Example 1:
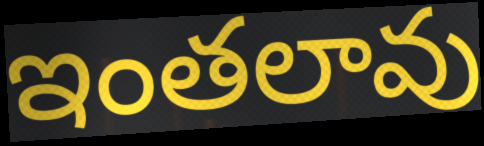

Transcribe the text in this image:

ఇంతలావు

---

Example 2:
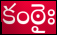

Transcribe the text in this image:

కంఠైః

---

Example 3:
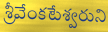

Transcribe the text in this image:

శ్రీవేంకటేశ్వరుని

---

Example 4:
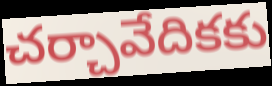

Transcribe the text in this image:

చర్చావేదికకు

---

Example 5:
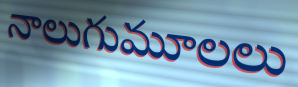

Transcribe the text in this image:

నాలుగుమూలలు